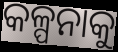
କଳ୍ପନାକୁ